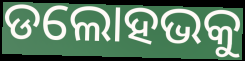
ଡଲୋହଭକୁ